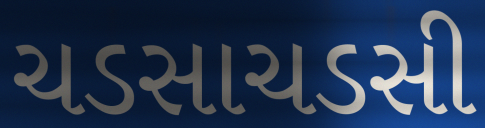
ચડસાચડસી